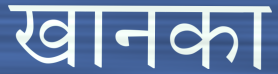
खानका